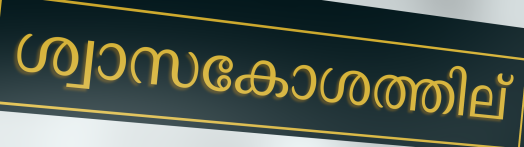
ശ്വാസകോശത്തില്